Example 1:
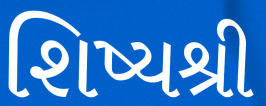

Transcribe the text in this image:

શિષ્યશ્રી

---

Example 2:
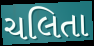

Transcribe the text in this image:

ચલિતા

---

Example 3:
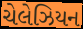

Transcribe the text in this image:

ચેલેઝિયન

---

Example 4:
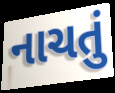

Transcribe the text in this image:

નાચતું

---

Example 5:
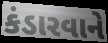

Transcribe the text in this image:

કંડારવાને